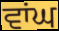
ਵਾਂਘ